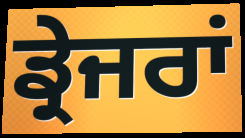
ਡ੍ਰੇਜਰਾਂ